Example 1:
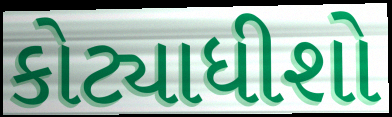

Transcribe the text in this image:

કોટ્યાધીશો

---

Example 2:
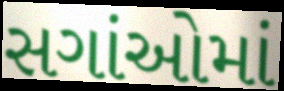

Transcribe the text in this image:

સગાંઓમાં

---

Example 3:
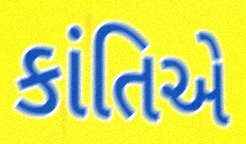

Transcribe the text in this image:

કાંતિએ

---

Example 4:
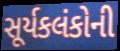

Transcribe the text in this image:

સૂર્યકલંકોની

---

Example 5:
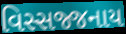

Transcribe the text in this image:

વિસ્સજ્જનાય